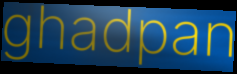
ghadpan